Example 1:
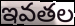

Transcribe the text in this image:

ఇవతల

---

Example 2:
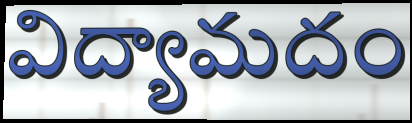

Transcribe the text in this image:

విద్యామదం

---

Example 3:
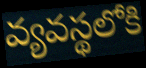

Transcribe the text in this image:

వ్యవస్థలోకి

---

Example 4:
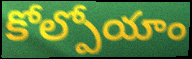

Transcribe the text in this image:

కోల్పోయాం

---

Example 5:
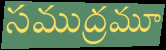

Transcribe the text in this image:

సముద్రమూ